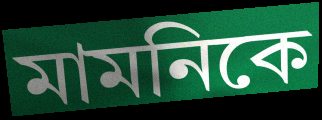
মামনিকে